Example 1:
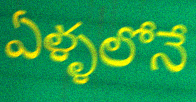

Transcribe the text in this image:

ఏళ్ళలోనే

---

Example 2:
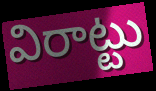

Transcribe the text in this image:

విరాట్టు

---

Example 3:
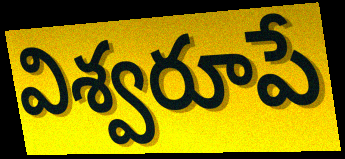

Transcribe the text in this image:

విశ్వరూపే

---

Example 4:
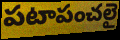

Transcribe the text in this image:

పటాపంచలై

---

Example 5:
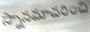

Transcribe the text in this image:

స్నానమాచరించి